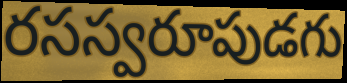
రసస్వరూపుడగు